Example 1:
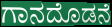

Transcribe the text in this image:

ಗಾನದೊಡನೆ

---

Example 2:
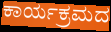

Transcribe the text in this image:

ಕಾರ್ಯಕ್ರಮದ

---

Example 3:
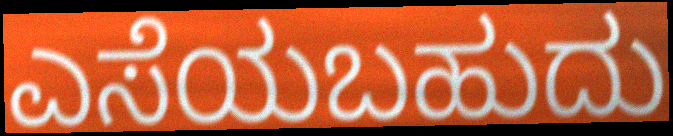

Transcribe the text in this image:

ಎಸೆಯಬಹುದು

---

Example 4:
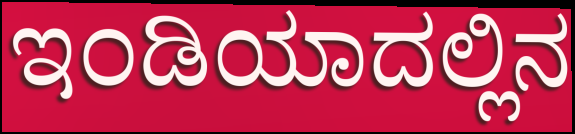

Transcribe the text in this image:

ಇಂಡಿಯಾದಲ್ಲಿನ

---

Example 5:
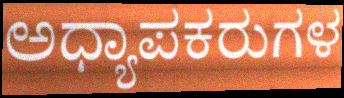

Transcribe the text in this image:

ಅಧ್ಯಾಪಕರುಗಳ